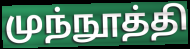
முந்நூத்தி